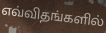
எவ்விதங்களில்